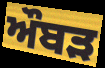
ਔਬੜ